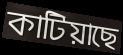
কাটিয়াছে